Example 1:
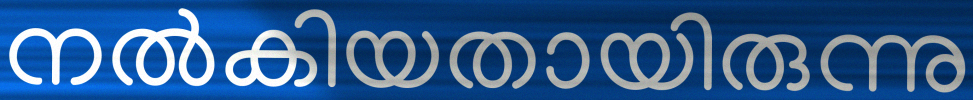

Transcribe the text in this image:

നൽകിയതായിരുന്നു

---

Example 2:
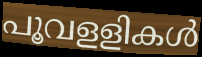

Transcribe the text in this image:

പൂവളളികൾ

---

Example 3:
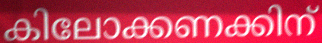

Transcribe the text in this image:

കിലോക്കണക്കിന്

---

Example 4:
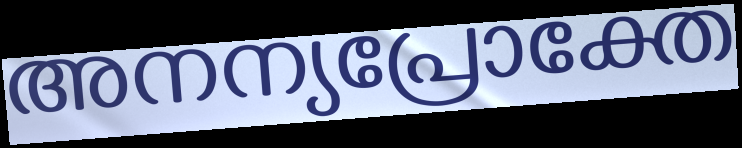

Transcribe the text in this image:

അനന്യപ്രോക്തേ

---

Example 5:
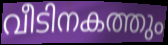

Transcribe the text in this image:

വീടിനകത്തും